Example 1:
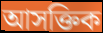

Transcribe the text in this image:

আসক্তিক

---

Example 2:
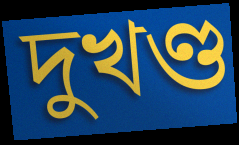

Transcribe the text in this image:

দুখণ্ড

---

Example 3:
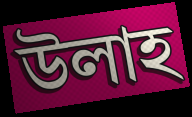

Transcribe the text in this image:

উলাহ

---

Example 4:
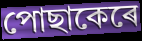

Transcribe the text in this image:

পোছাকেৰে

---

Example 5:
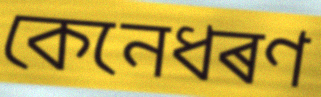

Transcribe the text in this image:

কেনেধৰণ